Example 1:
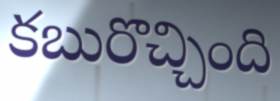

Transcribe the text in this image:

కబురొచ్చింది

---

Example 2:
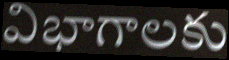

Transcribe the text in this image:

విభాగాలకు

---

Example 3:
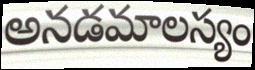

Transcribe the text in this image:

అనడమాలస్యం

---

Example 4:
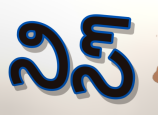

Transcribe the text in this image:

నిస్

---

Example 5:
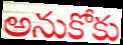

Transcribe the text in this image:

అనుకోకు